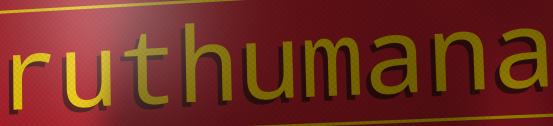
ruthumana